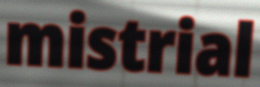
mistrial